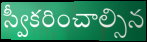
స్వీకరించాల్సిన